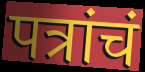
पत्रांचं